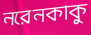
নরেনকাকু